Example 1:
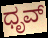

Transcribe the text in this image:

ಧೃವ್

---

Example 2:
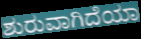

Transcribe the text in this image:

ಶುರುವಾಗಿದೆಯಾ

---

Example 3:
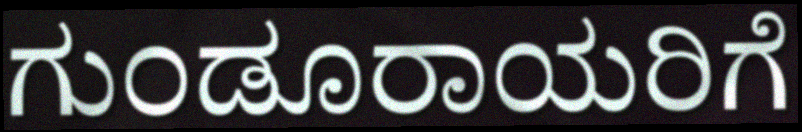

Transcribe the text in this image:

ಗುಂಡೂರಾಯರಿಗೆ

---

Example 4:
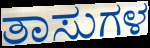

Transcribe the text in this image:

ತಾಸುಗಳ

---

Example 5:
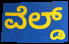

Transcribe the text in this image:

ವೆಲ್ಡ್